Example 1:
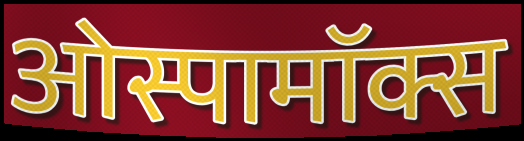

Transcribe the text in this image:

ओस्पामॉक्स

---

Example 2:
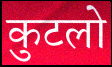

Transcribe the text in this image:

कुटलो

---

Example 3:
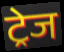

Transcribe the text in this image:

ट्रेज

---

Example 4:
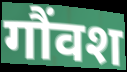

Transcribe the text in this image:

गौंवश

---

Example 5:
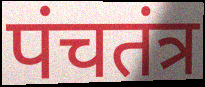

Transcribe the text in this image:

पंचतंत्र